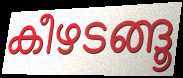
കീഴടങ്ങൂ